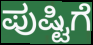
ಪುಷ್ಟಿಗೆ